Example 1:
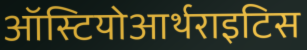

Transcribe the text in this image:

ऑस्टियोआर्थराइटिस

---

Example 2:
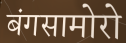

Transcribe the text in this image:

बंगसामोरो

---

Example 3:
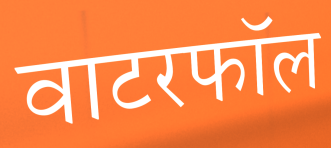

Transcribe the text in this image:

वाटरफॉल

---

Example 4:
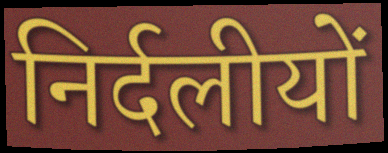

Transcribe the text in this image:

निर्दलीयों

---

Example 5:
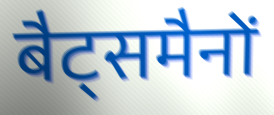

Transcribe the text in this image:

बैट्समैनों